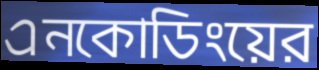
এনকোডিংয়ের